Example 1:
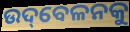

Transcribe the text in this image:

ଉଦ୍‌ବେଳନକୁ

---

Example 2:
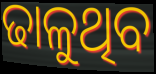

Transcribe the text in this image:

ଢାଳୁଥିବ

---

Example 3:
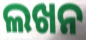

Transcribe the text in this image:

ଲଖନ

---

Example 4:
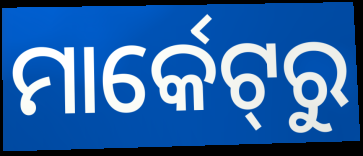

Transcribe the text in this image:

ମାର୍କେଟ୍‌ରୁ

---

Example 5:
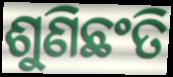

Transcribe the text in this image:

ଶୁଣିଛଂତି